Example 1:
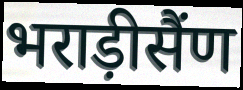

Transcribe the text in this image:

भराड़ीसैंण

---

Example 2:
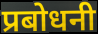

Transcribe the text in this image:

प्रबोधनी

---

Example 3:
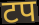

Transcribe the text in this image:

टप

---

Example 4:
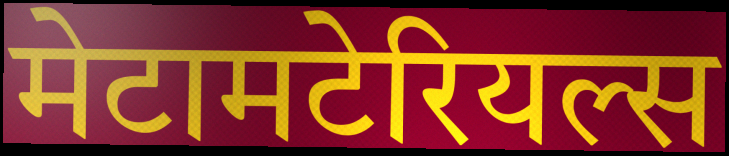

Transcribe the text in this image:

मेटामटेरियल्स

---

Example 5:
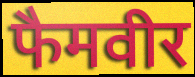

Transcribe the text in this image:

फैमवीर